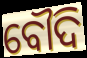
ବୌଦି